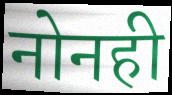
नोनही